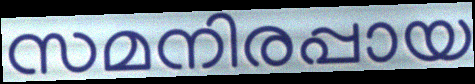
സമനിരപ്പായ